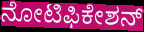
ನೋಟಿಫಿಕೇಶನ್